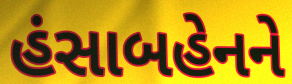
હંસાબહેનને